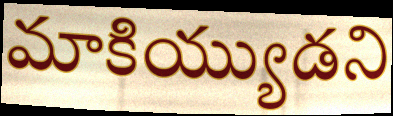
మాకియ్యుడని